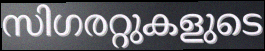
സിഗരറ്റുകളുടെ